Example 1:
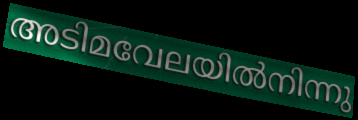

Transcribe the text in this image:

അടിമവേലയിൽനിന്നു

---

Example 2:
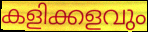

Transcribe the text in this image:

കളിക്കളവും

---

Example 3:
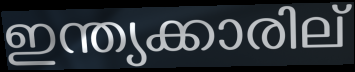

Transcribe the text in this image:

ഇന്ത്യക്കാരില്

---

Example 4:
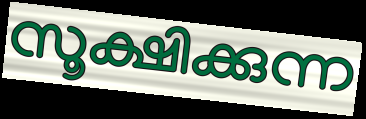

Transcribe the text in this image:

സൂക്ഷിക്കുന്ന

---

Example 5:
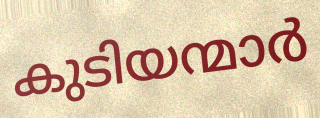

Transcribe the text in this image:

കുടിയന്മാർ